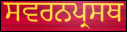
ਸਵਰਨਪ੍ਰਸਥ